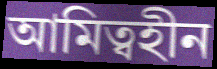
আমিত্বহীন